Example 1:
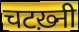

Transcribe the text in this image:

चटख़्नी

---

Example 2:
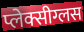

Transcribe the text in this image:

प्लेक्सीग्लस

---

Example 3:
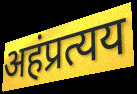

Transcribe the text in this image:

अहंप्रत्यय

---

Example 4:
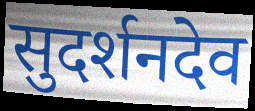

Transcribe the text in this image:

सुदर्शनदेव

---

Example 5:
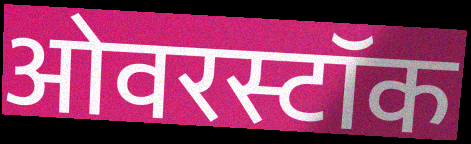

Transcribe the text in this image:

ओवरस्टॉक